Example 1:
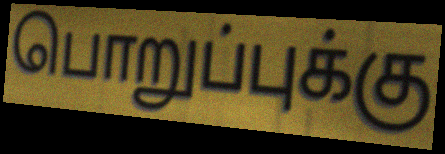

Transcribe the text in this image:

பொறுப்புக்கு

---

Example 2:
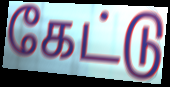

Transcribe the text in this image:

கேட்டு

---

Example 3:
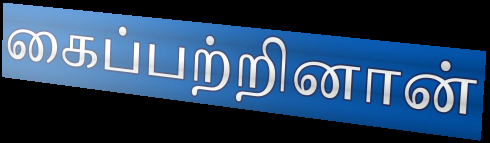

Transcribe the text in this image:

கைப்பற்றினான்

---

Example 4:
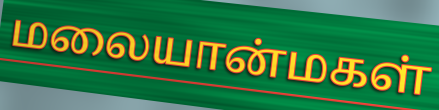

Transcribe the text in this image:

மலையான்மகள்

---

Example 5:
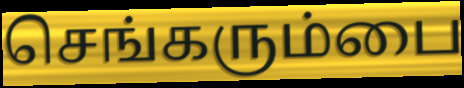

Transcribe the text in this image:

செங்கரும்பை